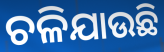
ଚଳିଯାଉଛି